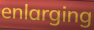
enlarging